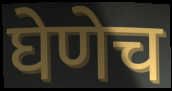
घेणेच